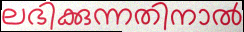
ലഭിക്കുന്നതിനാൽ